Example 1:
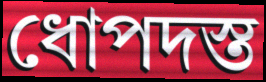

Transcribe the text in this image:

ধোপদস্ত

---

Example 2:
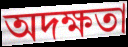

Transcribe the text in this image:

অদক্ষতা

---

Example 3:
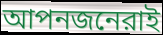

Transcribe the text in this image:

আপনজনেরাই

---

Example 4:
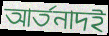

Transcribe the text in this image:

আর্তনাদই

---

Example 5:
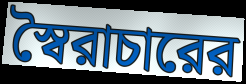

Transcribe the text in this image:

স্বৈরাচারের